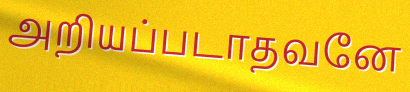
அறியப்படாதவனே